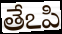
తేఽపి